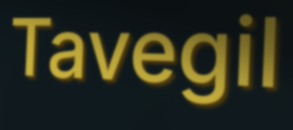
Tavegil